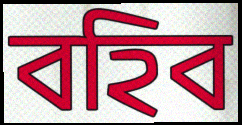
বহিব